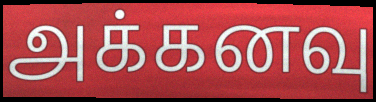
அக்கனவு